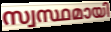
സ്വസ്ഥമായി